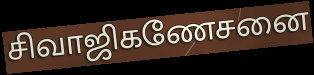
சிவாஜிகணேசனை